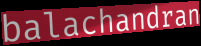
balachandran